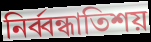
নির্ব্বন্ধাতিশয়